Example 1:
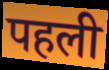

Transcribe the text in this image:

पहली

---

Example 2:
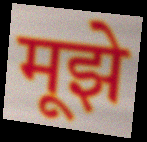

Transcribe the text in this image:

मूझे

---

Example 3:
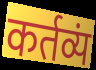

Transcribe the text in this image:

कर्तव्यं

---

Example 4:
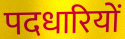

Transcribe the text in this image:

पदधारियों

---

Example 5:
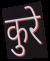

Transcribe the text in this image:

कुरे